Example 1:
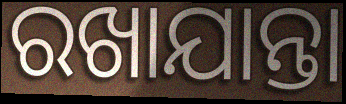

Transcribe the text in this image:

ରଖାଯାନ୍ତା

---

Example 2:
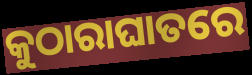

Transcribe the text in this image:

କୁଠାରାଘାତରେ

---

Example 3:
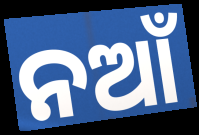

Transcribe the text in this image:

ନଆଁ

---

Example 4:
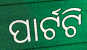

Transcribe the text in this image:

ପାର୍ଟଟି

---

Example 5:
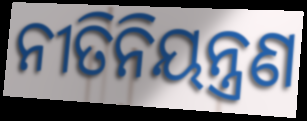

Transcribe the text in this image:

ନୀତିନିୟନ୍ତ୍ରଣ